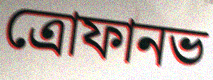
ত্রোফানভ